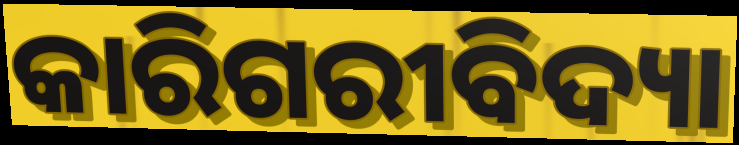
କାରିଗରୀବିଦ୍ୟା